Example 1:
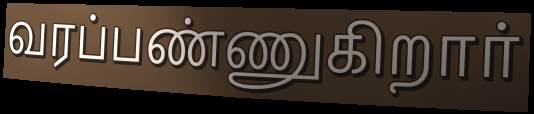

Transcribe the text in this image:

வரப்பண்ணுகிறார்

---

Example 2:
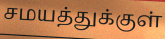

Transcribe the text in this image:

சமயத்துக்குள்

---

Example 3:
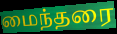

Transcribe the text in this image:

மைந்தரை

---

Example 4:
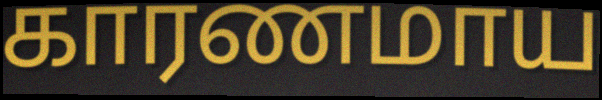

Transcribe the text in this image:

காரணமாய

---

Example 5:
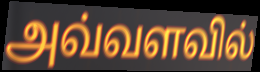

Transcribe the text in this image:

அவ்வளவில்